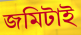
জমিটাই